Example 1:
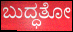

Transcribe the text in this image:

ಬುದ್ಧತೋ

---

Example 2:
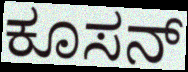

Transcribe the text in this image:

ಕೂಸನ್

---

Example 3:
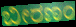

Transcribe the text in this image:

ಬೀರಣಂ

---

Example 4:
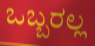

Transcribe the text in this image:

ಒಬ್ಬರಲ್ಲ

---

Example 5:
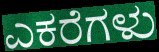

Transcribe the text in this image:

ಎಕರೆಗಳು